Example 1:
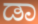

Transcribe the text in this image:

ಡಾ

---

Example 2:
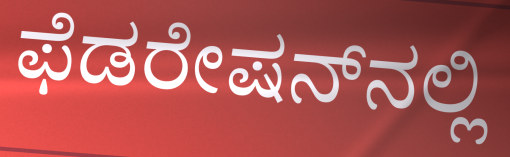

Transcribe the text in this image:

ಫೆಡರೇಷನ್‌ನಲ್ಲಿ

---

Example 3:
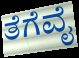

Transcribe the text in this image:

ತೆಗೆವೈ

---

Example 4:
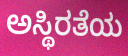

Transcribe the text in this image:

ಅಸ್ಥಿರತೆಯ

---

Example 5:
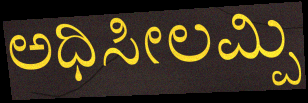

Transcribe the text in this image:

ಅಧಿಸೀಲಮ್ಪಿ